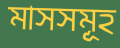
মাসসমূহ